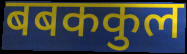
बबककुल